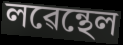
লৱেন্থেল